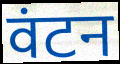
वंटन